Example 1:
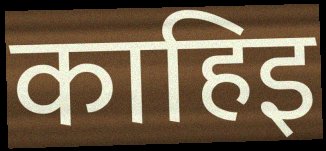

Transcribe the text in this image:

काहिइ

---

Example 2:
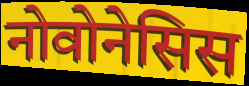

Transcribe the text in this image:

नोवोनेसिस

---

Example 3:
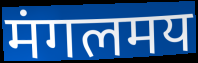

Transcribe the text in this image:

मंगलमय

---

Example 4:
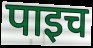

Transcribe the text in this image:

पाइच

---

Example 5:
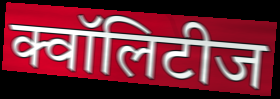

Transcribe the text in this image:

क्वॉलिटीज